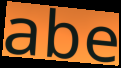
abe